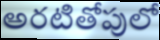
అరటితోపులో